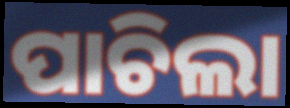
ପାଚିଲା